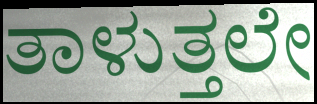
ತಾಳುತ್ತಲೇ